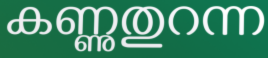
കണ്ണുതുറന്ന